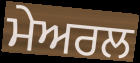
ਮੇਅਰਲ